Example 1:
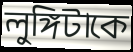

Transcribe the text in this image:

লুঙ্গিটাকে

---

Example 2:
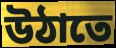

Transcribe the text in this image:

উঠাতে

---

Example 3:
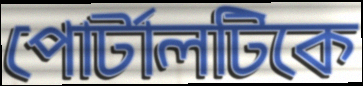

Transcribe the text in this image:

পোর্টালটিকে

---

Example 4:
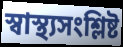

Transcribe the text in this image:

স্বাস্থ্যসংশ্লিষ্ট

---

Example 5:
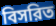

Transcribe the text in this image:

বিসরিত